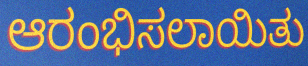
ಆರಂಭಿಸಲಾಯಿತು